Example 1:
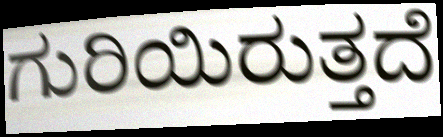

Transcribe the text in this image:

ಗುರಿಯಿರುತ್ತದೆ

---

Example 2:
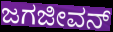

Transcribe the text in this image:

ಜಗಜೀವನ್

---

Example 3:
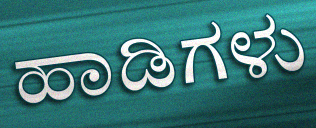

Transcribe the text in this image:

ಹಾಡಿಗಳು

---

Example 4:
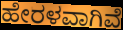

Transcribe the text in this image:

ಹೇರಳವಾಗಿವೆ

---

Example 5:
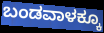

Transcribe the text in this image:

ಬಂಡವಾಳಕ್ಕೂ